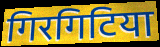
गिरगिटिया